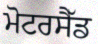
ਮੋਟਰਸੈੱਡ